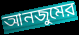
আনজুমের